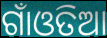
ଗାଁଓତିଆ